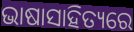
ଭାଷାସାହିତ୍ୟରେ